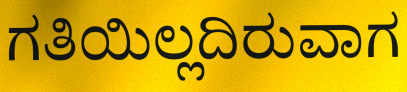
ಗತಿಯಿಲ್ಲದಿರುವಾಗ